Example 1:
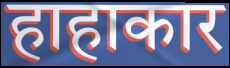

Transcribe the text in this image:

हाहाकार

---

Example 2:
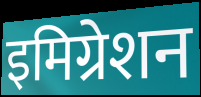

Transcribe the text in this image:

इमिग्रेशन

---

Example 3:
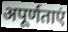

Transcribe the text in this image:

अपूर्णताएं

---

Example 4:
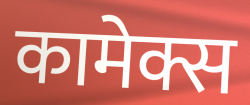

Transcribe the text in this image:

कामेक्स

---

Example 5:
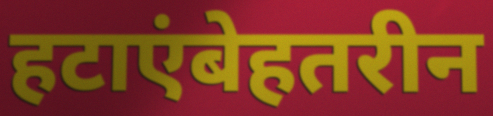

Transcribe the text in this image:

हटाएंबेहतरीन